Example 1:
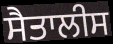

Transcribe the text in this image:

ਸੈਤਾਲੀਸ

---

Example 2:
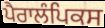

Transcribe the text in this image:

ਪੈਰਾਲੰਪਿਕਸ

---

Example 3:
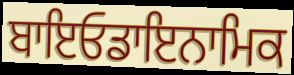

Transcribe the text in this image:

ਬਾਇਓਡਾਇਨਾਮਿਕ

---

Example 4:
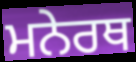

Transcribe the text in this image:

ਮਨੇਰਥ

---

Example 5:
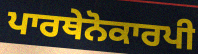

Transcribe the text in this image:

ਪਾਰਥੇਨੋਕਾਰਪੀ